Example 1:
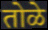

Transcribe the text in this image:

तोळे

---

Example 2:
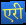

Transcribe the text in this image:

एरी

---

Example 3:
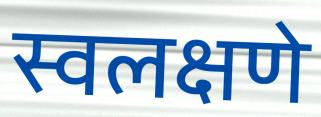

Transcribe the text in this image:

स्वलक्षणे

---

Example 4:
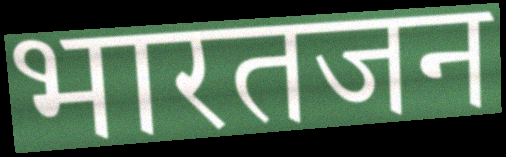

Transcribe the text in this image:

भारतजन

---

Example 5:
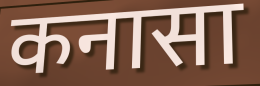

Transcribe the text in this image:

कनासा